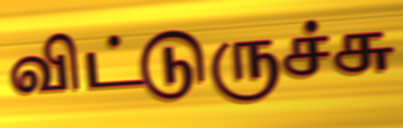
விட்டுருச்சு